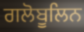
ਗਲੋਬੂਲਿਨ